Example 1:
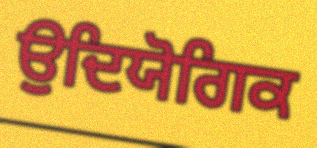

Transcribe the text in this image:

ਉਦਿਯੋਗਿਕ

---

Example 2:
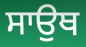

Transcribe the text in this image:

ਸਾਉਥ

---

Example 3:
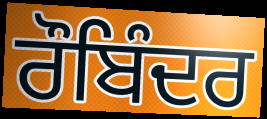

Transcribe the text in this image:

ਰੌਬਿੰਦਰ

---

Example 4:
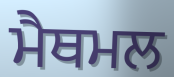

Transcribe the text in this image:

ਮੈਥਮਲ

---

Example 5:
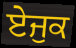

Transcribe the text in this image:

ਏਜੁਕ